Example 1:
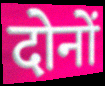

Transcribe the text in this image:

दोनों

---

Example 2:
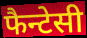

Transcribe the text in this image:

फैन्टेसी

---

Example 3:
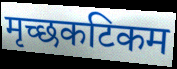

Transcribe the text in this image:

मृच्छकटिकम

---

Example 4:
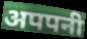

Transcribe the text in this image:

अपपनी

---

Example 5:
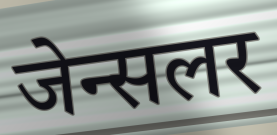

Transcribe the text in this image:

जेन्सलर